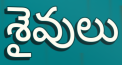
శైవులు